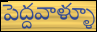
పెద్దవాళ్ళూ